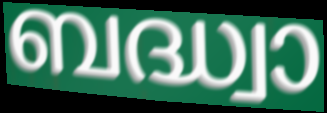
ബദ്ധ്വാ